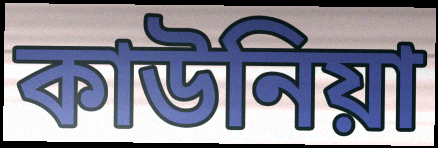
কাউনিয়া